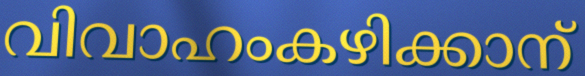
വിവാഹംകഴിക്കാന്